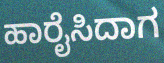
ಹಾರೈಸಿದಾಗ